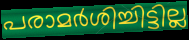
പരാമർശിച്ചിട്ടില്ല